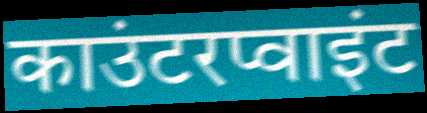
काउंटरप्वाइंट